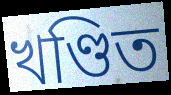
খণ্ডিত